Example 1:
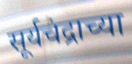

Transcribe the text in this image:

सूर्यचंद्राच्या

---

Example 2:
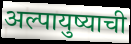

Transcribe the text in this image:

अल्पायुष्याची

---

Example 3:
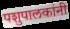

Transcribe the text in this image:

पशुपालकांनी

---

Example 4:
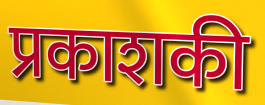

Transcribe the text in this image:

प्रकाशकी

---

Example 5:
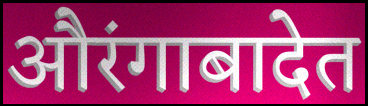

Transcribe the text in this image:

औरंगाबादेत